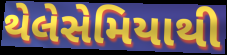
થેલેસેમિયાથી